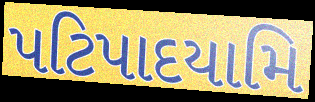
પટિપાદયામિ